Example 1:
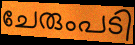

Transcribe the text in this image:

ചേരുംപടി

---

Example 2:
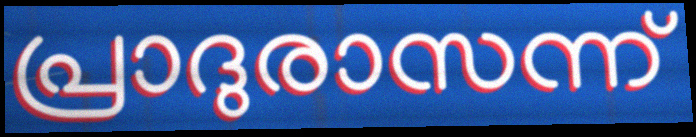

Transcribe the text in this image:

പ്രാദുരാസന്ന്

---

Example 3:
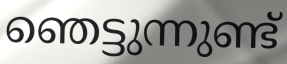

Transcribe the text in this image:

ഞെട്ടുന്നുണ്ട്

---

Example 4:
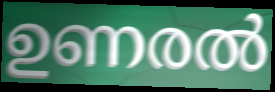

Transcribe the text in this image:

ഉണരൽ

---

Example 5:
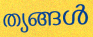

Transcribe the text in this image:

ത്യങ്ങൾ